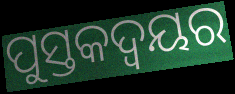
ପୁସ୍ତକଦ୍ୱୟର